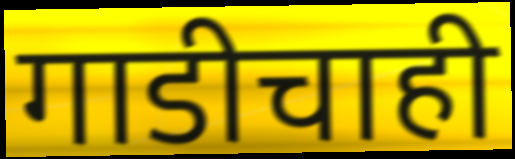
गाडीचाही